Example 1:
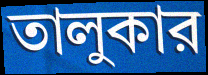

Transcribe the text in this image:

তালুকার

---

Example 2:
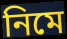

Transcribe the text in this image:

নিমে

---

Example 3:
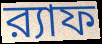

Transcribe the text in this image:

র‍্যাফ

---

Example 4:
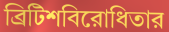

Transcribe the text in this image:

ব্রিটিশবিরোধিতার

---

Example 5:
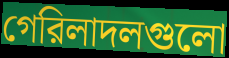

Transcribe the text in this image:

গেরিলাদলগুলো